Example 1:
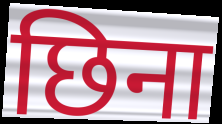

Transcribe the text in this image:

छिना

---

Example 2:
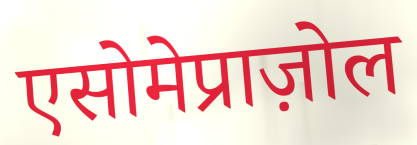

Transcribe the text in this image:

एसोमेप्राज़ोल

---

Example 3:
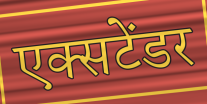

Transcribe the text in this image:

एक्सटेंडर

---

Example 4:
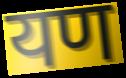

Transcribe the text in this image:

यण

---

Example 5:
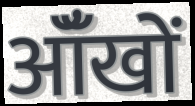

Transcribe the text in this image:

ऑँखों